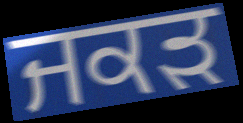
ਜਕੜ